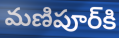
మణిపూర్‌కి